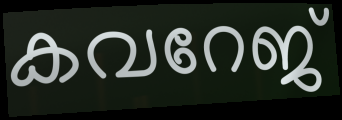
കവറേജ്